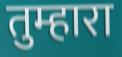
तुम्हारा